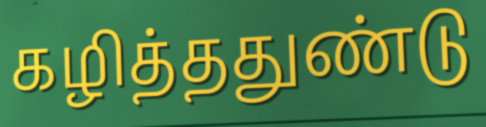
கழித்ததுண்டு